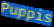
Puppis